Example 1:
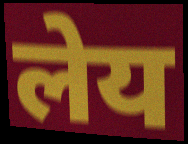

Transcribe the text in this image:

लेय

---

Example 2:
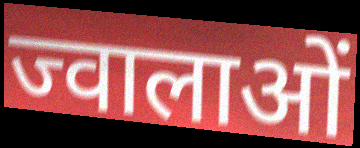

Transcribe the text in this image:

ज्वालाओं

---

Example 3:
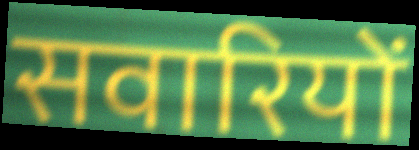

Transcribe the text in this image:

सवारियों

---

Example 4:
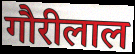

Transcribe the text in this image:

गौरीलाल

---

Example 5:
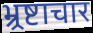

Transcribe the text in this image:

भ्र्रष्टाचार